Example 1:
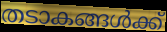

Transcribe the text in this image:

തടാകങ്ങൾക്ക്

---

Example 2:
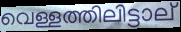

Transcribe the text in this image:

വെള്ളത്തിലിട്ടാല്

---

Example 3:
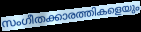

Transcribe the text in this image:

സംഗീതക്കാരത്തികളെയും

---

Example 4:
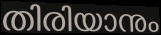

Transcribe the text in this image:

തിരിയാനും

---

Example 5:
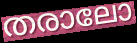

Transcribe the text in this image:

തരാലോ